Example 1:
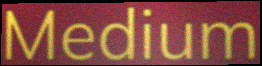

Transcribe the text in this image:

Medium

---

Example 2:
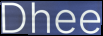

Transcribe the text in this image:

Dhee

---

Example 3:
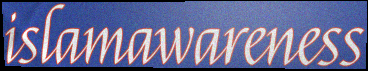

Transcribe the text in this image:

islamawareness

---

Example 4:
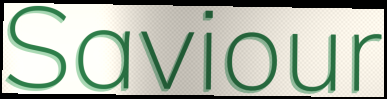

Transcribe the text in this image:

Saviour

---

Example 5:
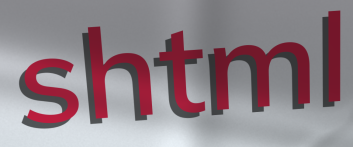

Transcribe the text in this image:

shtml